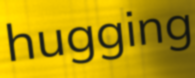
hugging